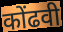
कोंढवी